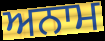
ਅਨਾਮ